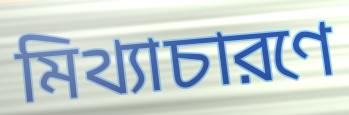
মিথ্যাচারণে